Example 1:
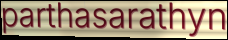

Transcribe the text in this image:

parthasarathyn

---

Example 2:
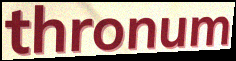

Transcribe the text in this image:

thronum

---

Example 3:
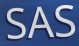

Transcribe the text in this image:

SAS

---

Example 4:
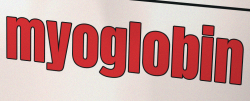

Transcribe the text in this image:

myoglobin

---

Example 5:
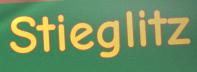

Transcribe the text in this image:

Stieglitz